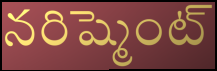
నరిష్మెంట్